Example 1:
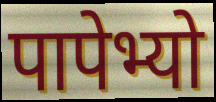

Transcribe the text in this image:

पापेभ्यो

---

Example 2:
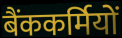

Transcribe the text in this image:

बैंककर्मियों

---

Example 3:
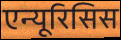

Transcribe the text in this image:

एन्यूरिसिस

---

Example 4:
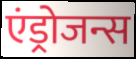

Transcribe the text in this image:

एंड्रोजन्स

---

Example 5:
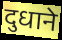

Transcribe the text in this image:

दुधाने